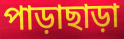
পাড়াছাড়া